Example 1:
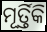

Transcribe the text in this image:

ମୂର୍ତ୍ତିକି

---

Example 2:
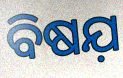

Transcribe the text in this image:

ବିଷଯ଼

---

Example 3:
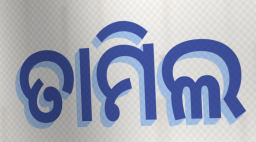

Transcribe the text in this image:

ତାମିଲ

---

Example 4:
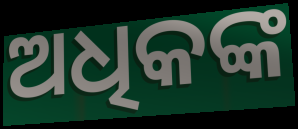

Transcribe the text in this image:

ଅଧିକଙ୍କ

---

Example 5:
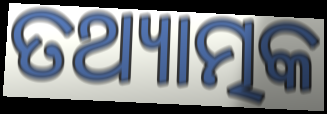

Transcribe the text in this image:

ତଥ୍ୟାତ୍ମକ